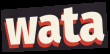
wata